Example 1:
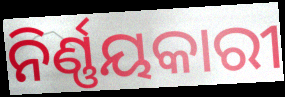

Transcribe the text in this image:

ନିର୍ଣ୍ଣୟକାରୀ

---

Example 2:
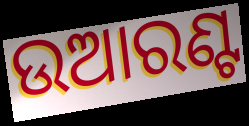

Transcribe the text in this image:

ଉଆରଣ୍ଟ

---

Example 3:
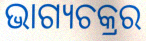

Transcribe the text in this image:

ଭାଗ୍ୟଚକ୍ରର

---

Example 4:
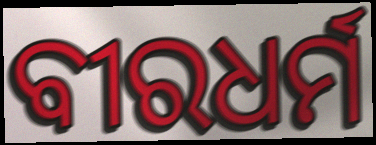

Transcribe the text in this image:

ବୀରଧର୍ମ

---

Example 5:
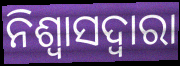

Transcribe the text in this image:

ନିଶ୍ୱାସଦ୍ୱାରା